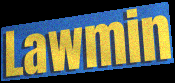
Lawmin